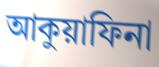
আকুয়াফিনা